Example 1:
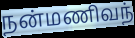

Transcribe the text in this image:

நன்மணிவந்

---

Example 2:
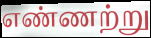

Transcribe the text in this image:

எண்ணற்று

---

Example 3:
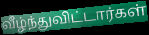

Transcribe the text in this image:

வீழ்ந்துவிட்டார்கள்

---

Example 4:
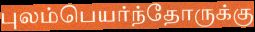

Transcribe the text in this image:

புலம்பெயர்ந்தோருக்கு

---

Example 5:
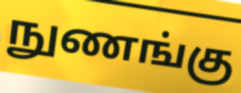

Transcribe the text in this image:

நுணங்கு